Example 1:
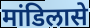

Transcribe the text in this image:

मांडिलासे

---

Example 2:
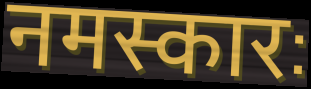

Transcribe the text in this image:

नमस्कारः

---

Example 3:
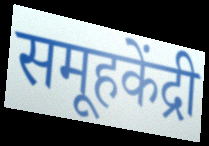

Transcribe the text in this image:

समूहकेंद्री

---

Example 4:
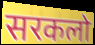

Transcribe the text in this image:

सरकलो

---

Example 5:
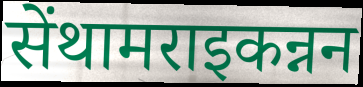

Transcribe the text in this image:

सेंथामराइकन्नन